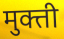
मुक्ती